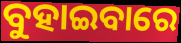
ବୁହାଇବାରେ